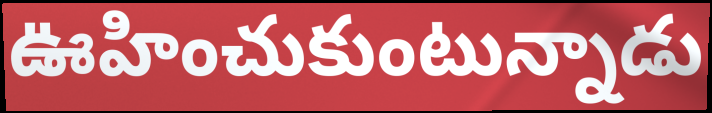
ఊహించుకుంటున్నాడు